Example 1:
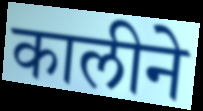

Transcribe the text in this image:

कालीने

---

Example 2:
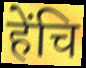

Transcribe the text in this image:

हेंचि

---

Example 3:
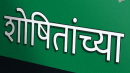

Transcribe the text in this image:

शोषितांच्या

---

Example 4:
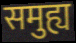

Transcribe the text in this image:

समुह्य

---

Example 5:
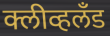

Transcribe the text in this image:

क्लीव्हलँड